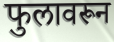
फुलावरून